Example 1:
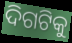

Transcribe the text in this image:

ଦିଗଟିକୁ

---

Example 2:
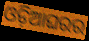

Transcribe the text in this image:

ଓଡ଼ିଆଘରର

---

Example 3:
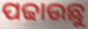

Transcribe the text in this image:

ପଢାଉଛୁ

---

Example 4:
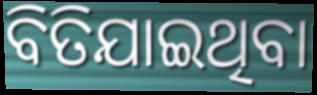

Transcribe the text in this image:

ବିତିଯାଇଥିବା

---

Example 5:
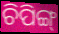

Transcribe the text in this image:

ଚିପିଙ୍ଗ୍